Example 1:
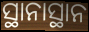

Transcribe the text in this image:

ସ୍ଥାନାସ୍ଥାନ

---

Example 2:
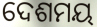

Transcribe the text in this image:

ଦେଶମୟ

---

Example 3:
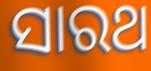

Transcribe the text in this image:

ସାରଥ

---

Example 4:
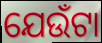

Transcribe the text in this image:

ଯେଉଁଟା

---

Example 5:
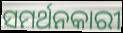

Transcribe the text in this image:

ସମର୍ଥନକାରୀ